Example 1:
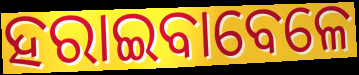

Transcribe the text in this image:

ହରାଇବାବେଳେ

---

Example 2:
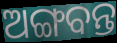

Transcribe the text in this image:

ଅଙ୍ଗବନ୍ତ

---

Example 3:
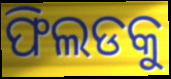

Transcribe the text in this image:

ଫିଲଡକୁ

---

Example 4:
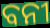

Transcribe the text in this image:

ବନୀ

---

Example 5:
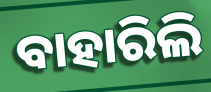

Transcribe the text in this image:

ବାହାରିଲି